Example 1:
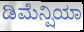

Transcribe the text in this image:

ಡಿಮೆನ್ಷಿಯಾ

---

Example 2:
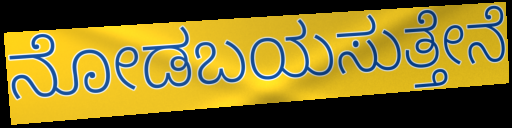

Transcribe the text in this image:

ನೋಡಬಯಸುತ್ತೇನೆ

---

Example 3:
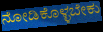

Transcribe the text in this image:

ನೋಡಿಕೊಳ್ಳಬೇಕು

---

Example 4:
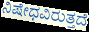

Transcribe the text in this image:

ನಿಷೇಧವಿರುತ್ತದೆ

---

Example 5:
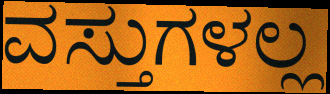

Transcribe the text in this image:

ವಸ್ತುಗಳಲ್ಲ